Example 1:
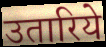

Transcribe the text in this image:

उतारिये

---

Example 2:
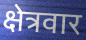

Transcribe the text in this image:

क्षेत्रवार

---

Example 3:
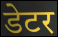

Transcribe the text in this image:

डेटर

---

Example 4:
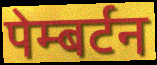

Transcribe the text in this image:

पेम्बर्टन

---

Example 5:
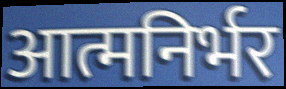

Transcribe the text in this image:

आत्मनिर्भर